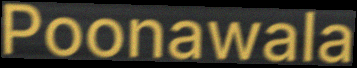
Poonawala